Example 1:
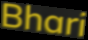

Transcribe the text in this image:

Bhari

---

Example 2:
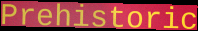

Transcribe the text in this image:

Prehistoric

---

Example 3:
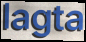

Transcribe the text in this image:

lagta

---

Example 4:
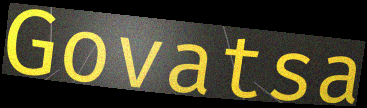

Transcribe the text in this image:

Govatsa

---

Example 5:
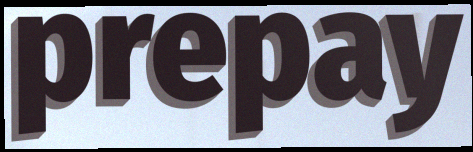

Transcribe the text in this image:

prepay